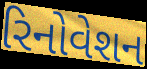
રિનોવેશન